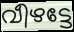
വീഴട്ടേ